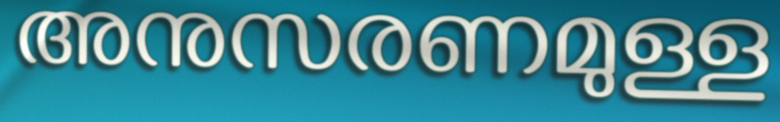
അനുസരണമുള്ള